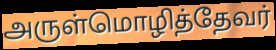
அருள்மொழித்தேவர்